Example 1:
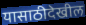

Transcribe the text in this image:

यासाठीदेखील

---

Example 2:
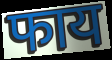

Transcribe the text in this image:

फाय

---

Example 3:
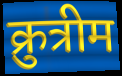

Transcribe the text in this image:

क्रुत्रीम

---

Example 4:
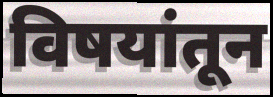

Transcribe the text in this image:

विषयांतून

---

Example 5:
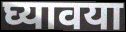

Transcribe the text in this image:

घ्यावया